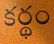
కర్థం